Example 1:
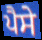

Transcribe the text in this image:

ਪੈਸੇ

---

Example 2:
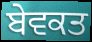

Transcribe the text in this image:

ਬੇਵਕਤ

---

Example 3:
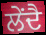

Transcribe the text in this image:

ਲੇਂਦੈ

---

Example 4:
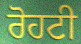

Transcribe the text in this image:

ਰੋਹਟੀ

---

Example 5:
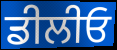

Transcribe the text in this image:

ਡੀਲੀਓ